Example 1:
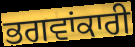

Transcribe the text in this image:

ਭਗਵਾਂਕਾਰੀ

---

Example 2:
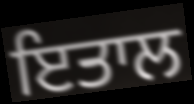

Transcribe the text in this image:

ਇਤਾਲ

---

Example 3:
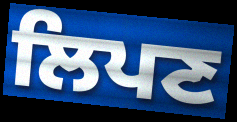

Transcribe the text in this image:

ਲਿਪਣ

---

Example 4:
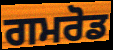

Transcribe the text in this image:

ਗਮਰੋਡ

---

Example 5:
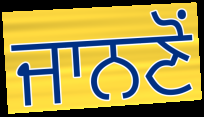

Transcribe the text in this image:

ਜਾਨਣੋਂ